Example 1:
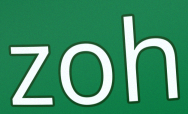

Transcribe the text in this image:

zoh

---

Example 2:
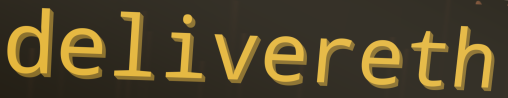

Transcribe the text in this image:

delivereth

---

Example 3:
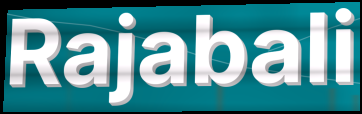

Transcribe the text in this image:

Rajabali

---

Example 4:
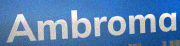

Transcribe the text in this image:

Ambroma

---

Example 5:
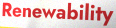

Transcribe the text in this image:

Renewability